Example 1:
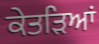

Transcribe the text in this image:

ਕੇਤੜਿਆਂ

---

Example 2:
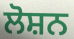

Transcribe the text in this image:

ਲੋਸ਼ਨ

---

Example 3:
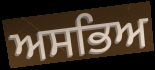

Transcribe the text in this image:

ਅਸਭਿਅ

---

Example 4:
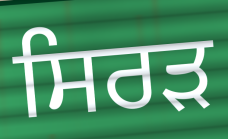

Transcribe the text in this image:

ਸਿਰਡ਼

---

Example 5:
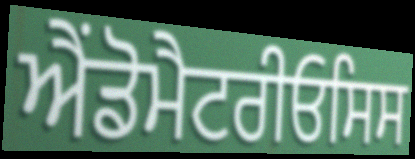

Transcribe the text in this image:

ਐਂਡੋਮੈਟਰੀਓਸਿਸ